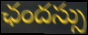
ఛందస్సు